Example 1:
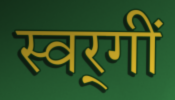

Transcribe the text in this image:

स्वर्गीं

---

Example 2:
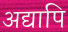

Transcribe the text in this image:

अद्यापि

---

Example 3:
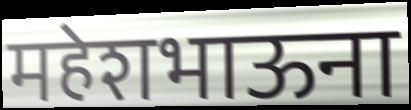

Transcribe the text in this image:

महेशभाऊना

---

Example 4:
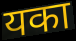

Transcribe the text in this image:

यका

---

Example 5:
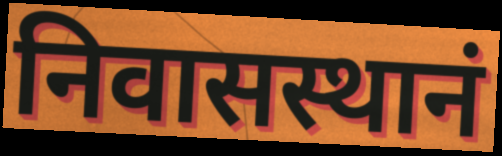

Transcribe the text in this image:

निवासस्थानं